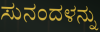
ಸುನಂದಳನ್ನು